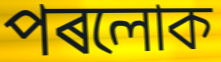
পৰলোক